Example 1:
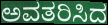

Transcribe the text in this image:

ಅವತರಿಸಿದ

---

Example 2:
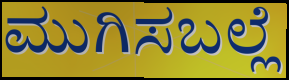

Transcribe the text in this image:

ಮುಗಿಸಬಲ್ಲೆ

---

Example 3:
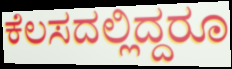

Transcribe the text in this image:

ಕೆಲಸದಲ್ಲಿದ್ದರೂ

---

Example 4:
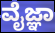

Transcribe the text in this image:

ವೈಜ್ಞಾ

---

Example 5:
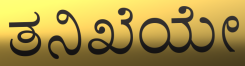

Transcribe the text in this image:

ತನಿಖೆಯೇ